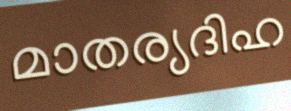
മാതര്യദിഹ